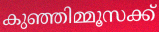
കുഞ്ഞിമ്മൂസക്ക്